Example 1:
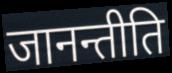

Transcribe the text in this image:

जानन्तीति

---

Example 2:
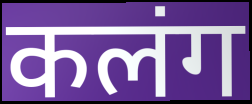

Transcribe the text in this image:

कलंग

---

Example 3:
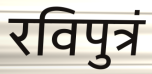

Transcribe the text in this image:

रविपुत्रं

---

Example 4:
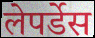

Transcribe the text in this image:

लेपर्डेस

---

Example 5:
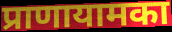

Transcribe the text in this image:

प्राणायामका